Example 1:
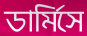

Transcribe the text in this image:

ডার্মিসে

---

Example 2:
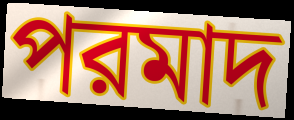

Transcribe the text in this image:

পরমাদ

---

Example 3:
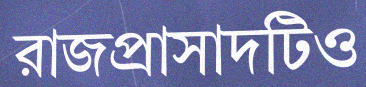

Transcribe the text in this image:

রাজপ্রাসাদটিও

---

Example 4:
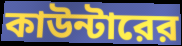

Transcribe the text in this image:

কাউন্টারের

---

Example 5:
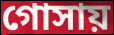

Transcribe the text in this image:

গোসায়